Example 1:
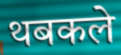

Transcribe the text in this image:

थबकले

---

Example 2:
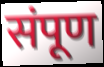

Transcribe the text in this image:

संपूण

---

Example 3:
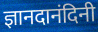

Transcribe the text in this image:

ज्ञानदानंदिनी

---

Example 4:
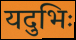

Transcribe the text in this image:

यदुभिः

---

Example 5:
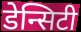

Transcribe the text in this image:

डेन्सिटी